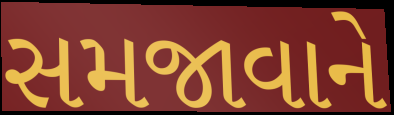
સમજાવાને